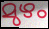
മുഴം